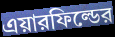
এয়ারফিল্ডের